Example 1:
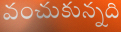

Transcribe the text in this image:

వంచుకున్నది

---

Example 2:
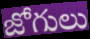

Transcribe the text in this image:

జోగులు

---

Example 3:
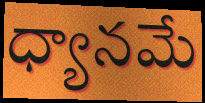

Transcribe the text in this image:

ధ్యానమే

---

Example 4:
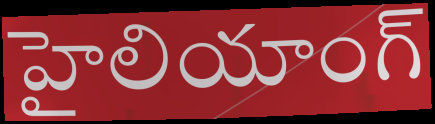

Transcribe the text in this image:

హైలియాంగ్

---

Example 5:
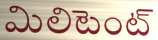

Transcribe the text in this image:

మిలిటెంట్